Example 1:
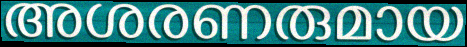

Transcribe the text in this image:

അശരണരുമായ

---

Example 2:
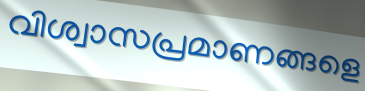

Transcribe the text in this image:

വിശ്വാസപ്രമാണങ്ങളെ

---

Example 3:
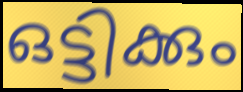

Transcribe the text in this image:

ഒട്ടിക്കും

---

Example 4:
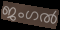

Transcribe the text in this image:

ജംഗൽ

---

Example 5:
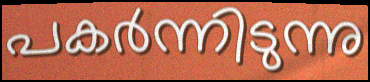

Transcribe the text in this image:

പകർന്നിടുന്നു